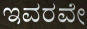
ಇವರವೇ